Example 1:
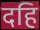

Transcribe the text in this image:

दहि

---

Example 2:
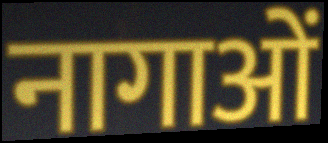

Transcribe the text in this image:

नागाओं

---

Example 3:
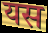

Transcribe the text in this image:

यस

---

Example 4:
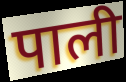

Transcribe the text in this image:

पाली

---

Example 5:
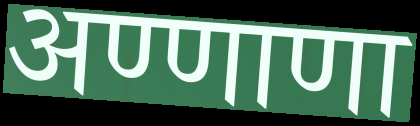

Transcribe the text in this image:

अण्णाणा